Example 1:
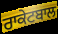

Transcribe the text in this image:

ਰਾਕੇਟਬਾਲ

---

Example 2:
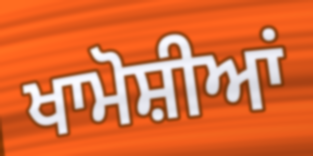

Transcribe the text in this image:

ਖਾਮੋਸ਼ੀਆਂ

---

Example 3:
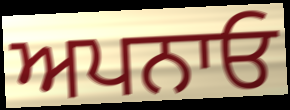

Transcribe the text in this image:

ਅਪਨਾਓ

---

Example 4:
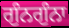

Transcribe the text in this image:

ਗੁੰਨਗੁੰਨਾ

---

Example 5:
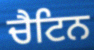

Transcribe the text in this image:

ਚੈਟਿਨ